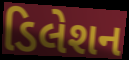
ડિલેશન